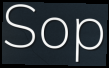
Sop